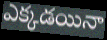
ఎక్కడయినా